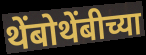
थेंबोथेंबीच्या